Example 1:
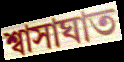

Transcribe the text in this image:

শ্বাসাঘাত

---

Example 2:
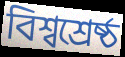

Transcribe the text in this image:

বিশ্বশ্ৰেষ্ঠ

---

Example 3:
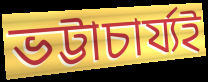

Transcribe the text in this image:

ভট্টাচাৰ্য্যই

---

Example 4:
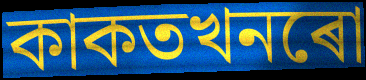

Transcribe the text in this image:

কাকতখনৰো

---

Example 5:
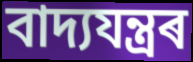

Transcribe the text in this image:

বাদ্যযন্ত্ৰৰ